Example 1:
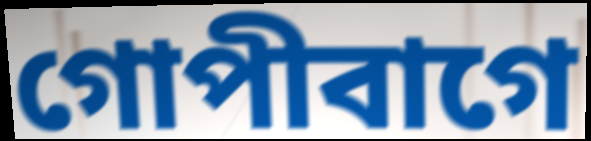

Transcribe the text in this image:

গোপীবাগে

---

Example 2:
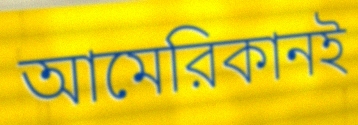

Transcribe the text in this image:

আমেরিকানই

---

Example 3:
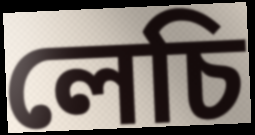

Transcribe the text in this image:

লেচি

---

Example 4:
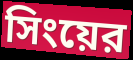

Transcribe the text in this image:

সিংয়ের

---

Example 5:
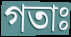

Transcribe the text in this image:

গতাঃ